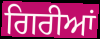
ਗਿਰੀਆਂ